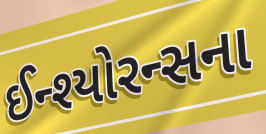
ઈન્શ્યોરન્સના